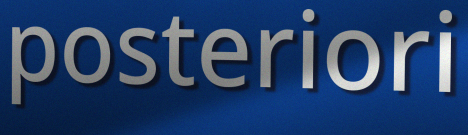
posteriori